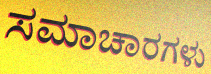
ಸಮಾಚಾರಗಳು